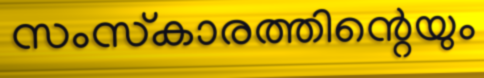
സംസ്‌കാരത്തിന്റെയും